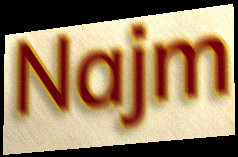
Najm